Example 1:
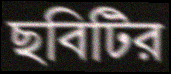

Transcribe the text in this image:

ছবিটির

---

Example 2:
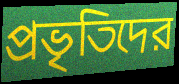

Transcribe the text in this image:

প্রভৃতিদের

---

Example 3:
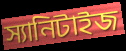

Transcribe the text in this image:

স্যানিটাইজ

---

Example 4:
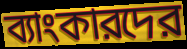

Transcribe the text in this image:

ব্যাংকারদের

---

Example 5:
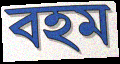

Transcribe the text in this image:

বহম